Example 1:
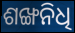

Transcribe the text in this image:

ଶଙ୍ଖନିଧି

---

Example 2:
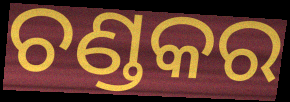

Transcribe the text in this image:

ଚଣ୍ଡକର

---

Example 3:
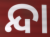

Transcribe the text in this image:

ନ୍ଦା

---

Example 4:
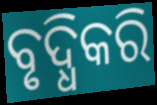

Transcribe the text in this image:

ବୃଦ୍ଧିକରି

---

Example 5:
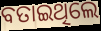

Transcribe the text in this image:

ବତାଇଥିଲେ